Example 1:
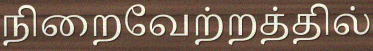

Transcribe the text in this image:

நிறைவேற்றத்தில்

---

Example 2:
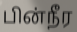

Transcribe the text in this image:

பின்நீர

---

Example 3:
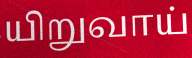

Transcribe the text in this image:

யிறுவாய்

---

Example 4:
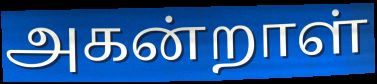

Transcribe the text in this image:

அகன்றாள்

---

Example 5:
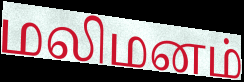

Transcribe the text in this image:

மலிமனம்